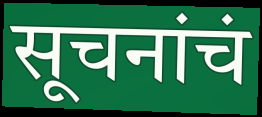
सूचनांचं